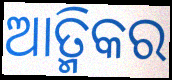
ଆତ୍ମିକର